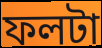
ফলটা